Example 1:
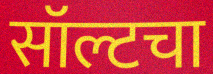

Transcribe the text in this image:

सॉल्टचा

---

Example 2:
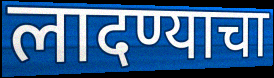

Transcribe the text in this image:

लादण्याचा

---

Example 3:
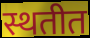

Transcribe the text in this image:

स्थतीत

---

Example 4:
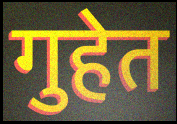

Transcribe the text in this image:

गुहेत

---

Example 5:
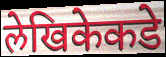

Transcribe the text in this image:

लेखिकेकडे